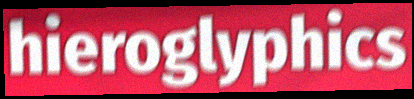
hieroglyphics